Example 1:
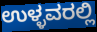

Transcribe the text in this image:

ಉಳ್ಳವರಲ್ಲಿ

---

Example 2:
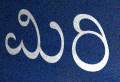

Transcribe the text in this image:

ಮಿರಿ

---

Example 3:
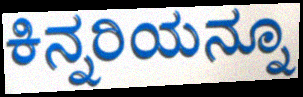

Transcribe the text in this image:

ಕಿನ್ನರಿಯನ್ನೂ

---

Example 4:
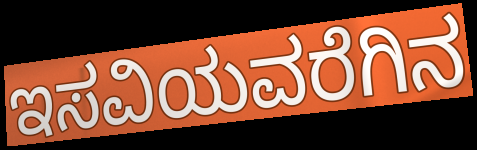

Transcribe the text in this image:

ಇಸವಿಯವರೆಗಿನ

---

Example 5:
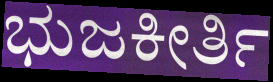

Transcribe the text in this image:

ಭುಜಕೀರ್ತಿ